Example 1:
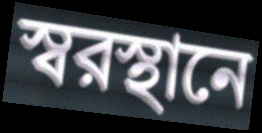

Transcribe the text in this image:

স্বরস্থানে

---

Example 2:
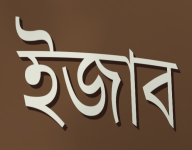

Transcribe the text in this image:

ইজাব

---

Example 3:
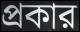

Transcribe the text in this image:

প্রকার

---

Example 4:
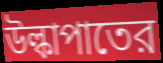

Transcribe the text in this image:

উল্কাপাতের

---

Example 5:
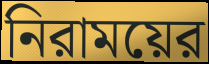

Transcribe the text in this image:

নিরাময়ের